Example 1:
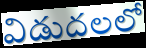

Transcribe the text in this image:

విడుదలలో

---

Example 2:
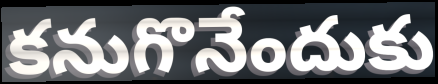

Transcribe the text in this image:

కనుగొనేందుకు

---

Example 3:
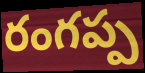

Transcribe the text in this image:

రంగప్ప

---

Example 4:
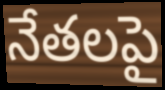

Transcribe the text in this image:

నేతలపై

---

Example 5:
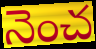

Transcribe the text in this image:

నెంచ